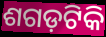
ଶଗଡ଼ଟିକି